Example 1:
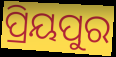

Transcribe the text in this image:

ପ୍ରିୟପୁର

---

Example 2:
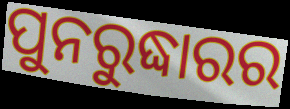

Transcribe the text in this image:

ପୁନରୁଦ୍ଧାରର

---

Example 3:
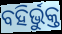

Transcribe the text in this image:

ବହିର୍ଭୁକ୍ତ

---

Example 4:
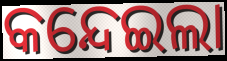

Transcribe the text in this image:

କନ୍ଦେଇଲା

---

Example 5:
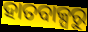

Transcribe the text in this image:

ହାତବାକ୍ସରୁ